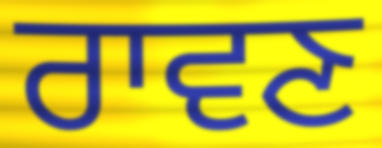
ਰਾਵਣ